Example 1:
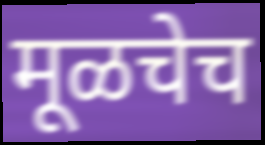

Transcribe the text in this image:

मूळचेच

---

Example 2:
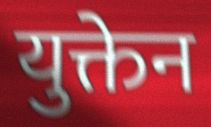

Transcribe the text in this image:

युक्तेन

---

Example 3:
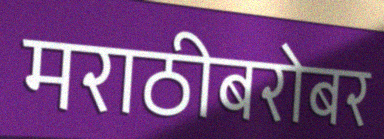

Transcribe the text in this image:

मराठीबरोबर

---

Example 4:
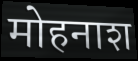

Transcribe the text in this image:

मोहनाश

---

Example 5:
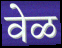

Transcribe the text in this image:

वेळ